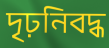
দৃঢ়নিবদ্ধ